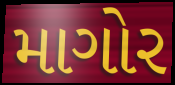
માગોર